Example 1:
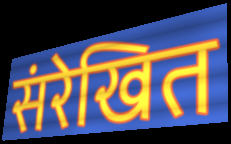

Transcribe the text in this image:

संरेखित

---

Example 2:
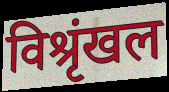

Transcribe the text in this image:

विश्रृंखल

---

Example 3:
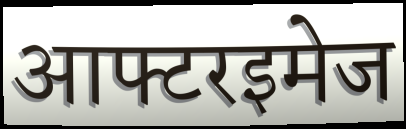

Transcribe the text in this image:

आफ्टरइमेज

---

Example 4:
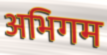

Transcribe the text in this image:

अभिगम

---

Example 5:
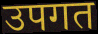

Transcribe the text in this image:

उपगत